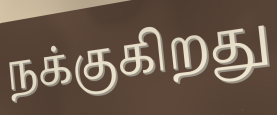
நக்குகிறது